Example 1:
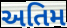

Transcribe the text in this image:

અતિમ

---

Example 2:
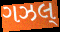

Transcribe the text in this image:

ગઝલ્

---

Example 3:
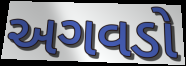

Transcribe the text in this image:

અગવડો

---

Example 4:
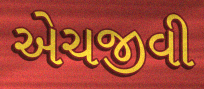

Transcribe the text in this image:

એચજીવી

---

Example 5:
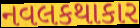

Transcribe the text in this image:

નવલકથાકાર